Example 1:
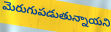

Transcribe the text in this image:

మెరుగుపడుతున్నాయని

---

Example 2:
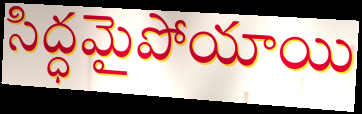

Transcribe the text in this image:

సిద్ధమైపోయాయి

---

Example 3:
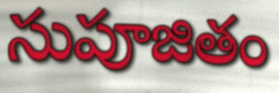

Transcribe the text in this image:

సుపూజితం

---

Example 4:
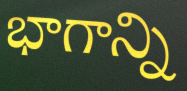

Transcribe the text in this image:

భాగాన్ని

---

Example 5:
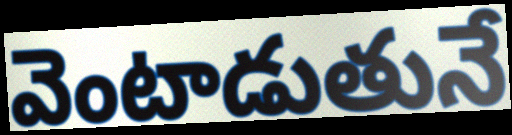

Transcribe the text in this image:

వెంటాడుతునే